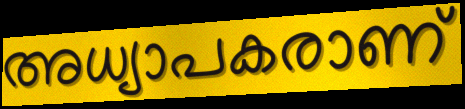
അധ്യാപകരാണ്